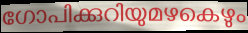
ഗോപിക്കുറിയുമഴകെഴും